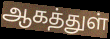
ஆகத்துள்